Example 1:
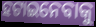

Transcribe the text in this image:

ହଟାଇନେବାକୁ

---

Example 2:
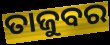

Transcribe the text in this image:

ତାଜୁବର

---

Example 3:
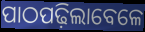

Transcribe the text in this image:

ପାଠପଢ଼ିଲାବେଳେ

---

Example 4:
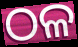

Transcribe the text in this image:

ଠଳ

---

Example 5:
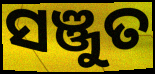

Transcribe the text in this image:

ସଞ୍ଜୁତ